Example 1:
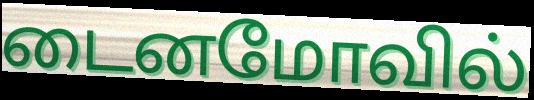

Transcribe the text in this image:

டைனமோவில்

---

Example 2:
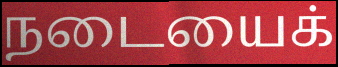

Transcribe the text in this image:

நடையைக்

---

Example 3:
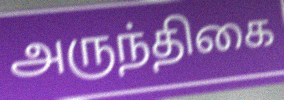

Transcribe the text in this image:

அருந்திகை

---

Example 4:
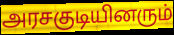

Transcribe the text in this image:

அரசகுடியினரும்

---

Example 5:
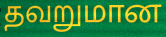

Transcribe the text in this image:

தவறுமான